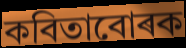
কবিতাবোৰক